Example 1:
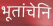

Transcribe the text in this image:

भूतांचेनि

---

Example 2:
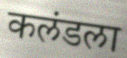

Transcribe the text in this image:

कलंडला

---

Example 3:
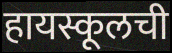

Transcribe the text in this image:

हायस्कूलची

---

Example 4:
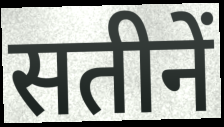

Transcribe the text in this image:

सतीनें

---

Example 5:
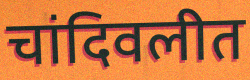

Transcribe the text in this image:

चांदिवलीत